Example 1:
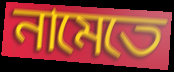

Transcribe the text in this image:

নামেতে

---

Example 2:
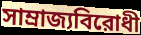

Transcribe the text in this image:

সাম্রাজ্যবিরোধী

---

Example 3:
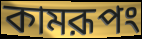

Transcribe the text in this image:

কামরূপং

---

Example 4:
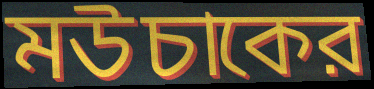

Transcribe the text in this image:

মউচাকের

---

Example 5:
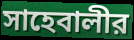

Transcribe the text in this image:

সাহেবালীর